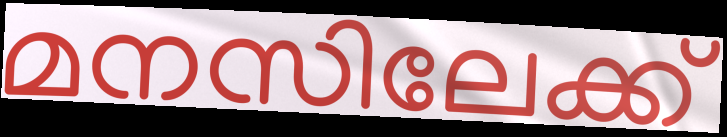
മനസിലേക്ക്